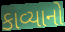
કાવ્યાનો